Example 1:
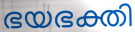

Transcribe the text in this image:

ഭയഭക്തി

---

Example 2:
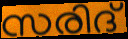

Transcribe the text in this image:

സരിദ്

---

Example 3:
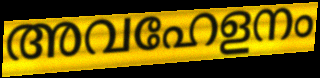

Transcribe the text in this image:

അവഹേളനം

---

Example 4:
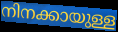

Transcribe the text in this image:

നിനക്കായുള്ള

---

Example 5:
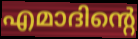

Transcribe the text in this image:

എമാദിന്റെ